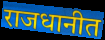
राजधानीत